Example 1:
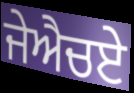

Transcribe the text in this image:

ਜੇਐਚਏ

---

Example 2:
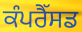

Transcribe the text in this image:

ਕੰਪਰੈੱਸਡ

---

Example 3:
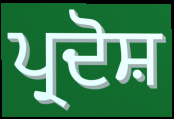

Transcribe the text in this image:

ਪ੍ਰਦੋਸ਼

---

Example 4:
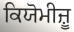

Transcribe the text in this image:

ਕਿਯੋਮੀਜ਼ੂ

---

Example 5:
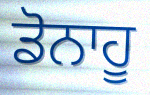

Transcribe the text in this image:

ਡੋਨਾਹੂ